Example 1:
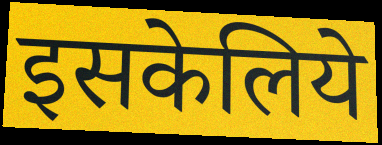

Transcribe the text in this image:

इसकेलिये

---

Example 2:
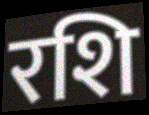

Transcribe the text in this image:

रशि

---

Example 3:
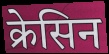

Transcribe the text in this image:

क्रेसिन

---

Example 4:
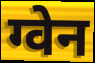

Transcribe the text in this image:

ग्वेन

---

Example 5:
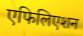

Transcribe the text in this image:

एफिलिएशन